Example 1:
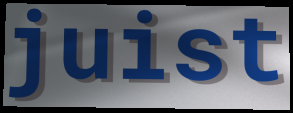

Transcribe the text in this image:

juist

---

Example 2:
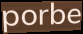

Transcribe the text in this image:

porbe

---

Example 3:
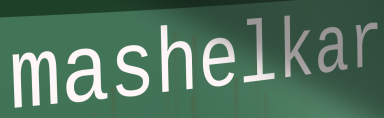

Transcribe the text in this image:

mashelkar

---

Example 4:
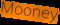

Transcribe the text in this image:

Mooney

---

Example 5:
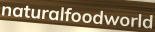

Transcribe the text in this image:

naturalfoodworld